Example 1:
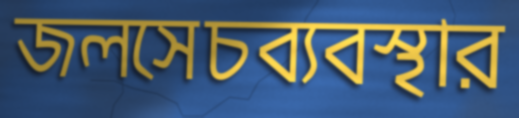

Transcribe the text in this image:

জলসেচব্যবস্থার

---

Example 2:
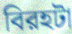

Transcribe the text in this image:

বিরহটা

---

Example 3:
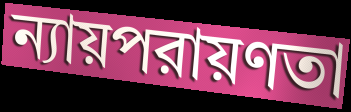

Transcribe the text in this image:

ন্যায়পরায়ণতা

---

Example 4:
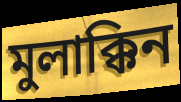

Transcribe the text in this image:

মুলাক্কিন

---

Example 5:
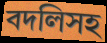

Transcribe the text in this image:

বদলিসহ